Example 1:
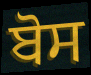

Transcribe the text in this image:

ਬੋਸ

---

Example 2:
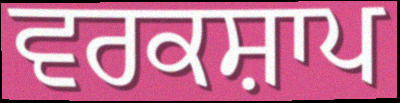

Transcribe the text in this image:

ਵਰਕਸ਼ਾਪ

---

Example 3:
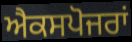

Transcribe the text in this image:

ਐਕਸਪੋਜਰਾਂ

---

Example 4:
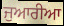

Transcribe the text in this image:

ਜੁਆਰੀਆ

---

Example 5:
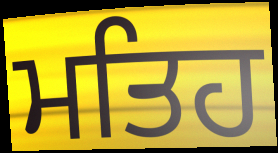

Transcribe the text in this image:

ਮਤਿਹ